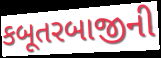
કબૂતરબાજીની